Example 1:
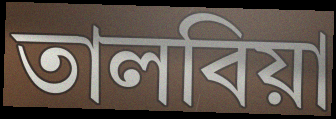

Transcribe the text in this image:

তালবিয়া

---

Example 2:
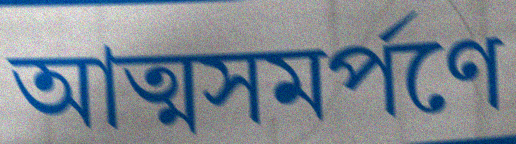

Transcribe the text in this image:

আত্মসমর্পণে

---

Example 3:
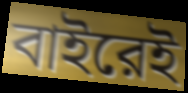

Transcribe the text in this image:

বাইরেই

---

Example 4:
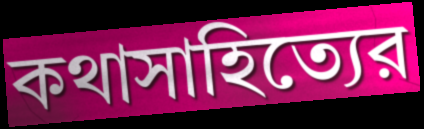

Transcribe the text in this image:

কথাসাহিত্যের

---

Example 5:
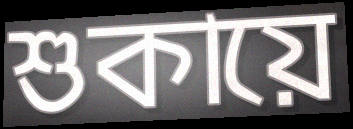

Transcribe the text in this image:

শুকায়ে